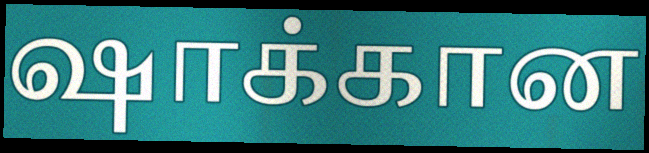
ஷாக்கான